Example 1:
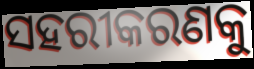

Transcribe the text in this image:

ସହରୀକରଣକୁ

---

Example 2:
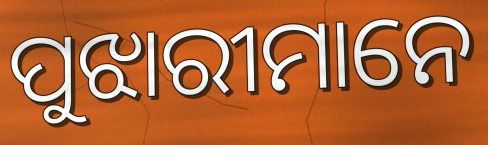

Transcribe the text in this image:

ପୁଝାରୀମାନେ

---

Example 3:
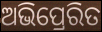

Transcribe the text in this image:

ଅଭିପ୍ରେରିତ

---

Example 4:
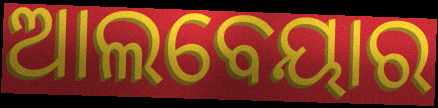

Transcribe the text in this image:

ଆଲବେୟାର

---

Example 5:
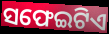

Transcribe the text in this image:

ସଫେଇଟିଏ